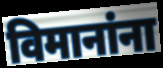
विमानांना